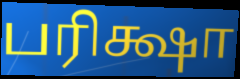
பரிக்ஷா